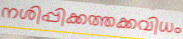
നശിപ്പിക്കത്തക്കവിധം